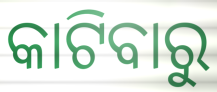
କାଟିବାରୁ